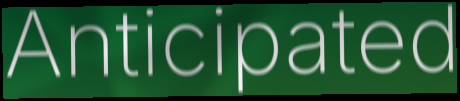
Anticipated